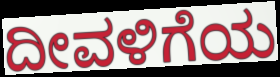
ದೀವಳಿಗೆಯ